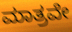
ಮಾತ್ರವೇ